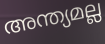
അന്ത്യമല്ല